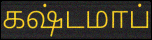
கஷ்டமாப்